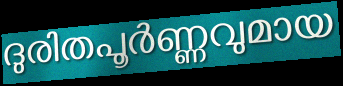
ദുരിതപൂർണ്ണവുമായ